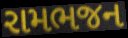
રામભજન